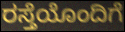
ರಸ್ತೆಯೊಂದಿಗೆ